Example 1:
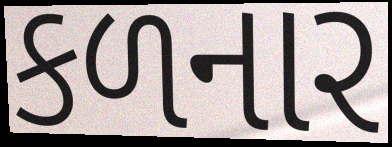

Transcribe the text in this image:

કળનાર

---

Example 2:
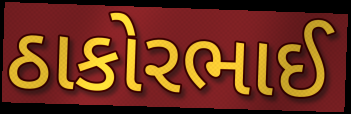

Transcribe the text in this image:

ઠાકોરભાઈ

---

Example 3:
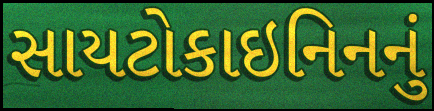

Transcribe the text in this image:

સાયટોકાઇનિનનું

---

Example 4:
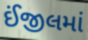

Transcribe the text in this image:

ઈંજીલમાં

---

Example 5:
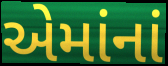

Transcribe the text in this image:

એમાંનાં